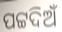
ପଟ୍ଟଦିଅଁ